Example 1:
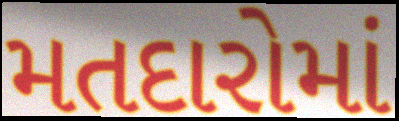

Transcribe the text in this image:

મતદારોમાં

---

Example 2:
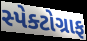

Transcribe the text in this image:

સ્પેક્ટોગ્રાફ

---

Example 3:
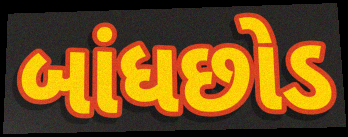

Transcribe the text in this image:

બાંધછોડ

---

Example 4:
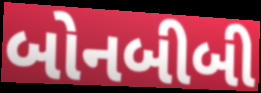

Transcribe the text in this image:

બોનબીબી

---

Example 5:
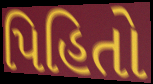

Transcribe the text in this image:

પિહિતો